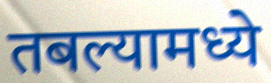
तबल्यामध्ये